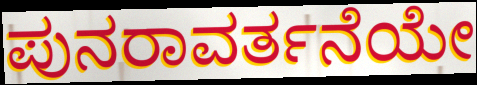
ಪುನರಾವರ್ತನೆಯೇ